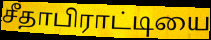
சீதாபிராட்டியை